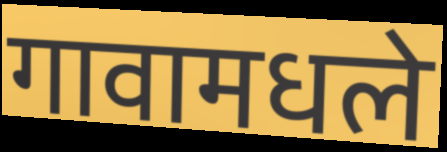
गावामधले